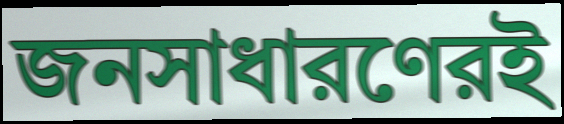
জনসাধারণেরই